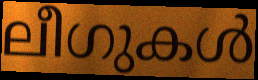
ലീഗുകൾ